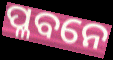
ପ୍ଳବନେ